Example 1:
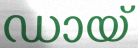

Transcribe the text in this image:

ഡായ്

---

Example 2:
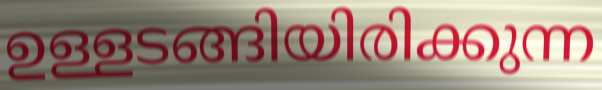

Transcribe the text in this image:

ഉള്ളടങ്ങിയിരിക്കുന്ന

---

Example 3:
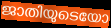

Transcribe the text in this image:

ജാതിയുടെയോ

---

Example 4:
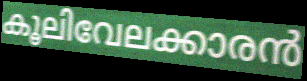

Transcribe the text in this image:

കൂലിവേലക്കാരൻ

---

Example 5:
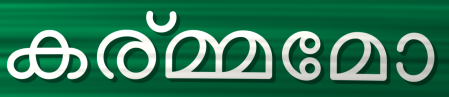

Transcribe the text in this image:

കര്മ്മമോ